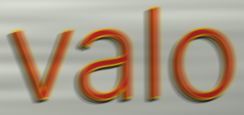
valo